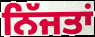
ਨਿੱਜਤਾਂ